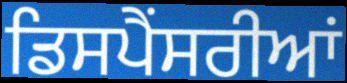
ਡਿਸਪੈਂਸਰੀਆਂ